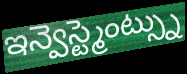
ఇన్వెస్ట్మెంట్స్ను